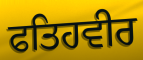
ਫਤਿਹਵੀਰ